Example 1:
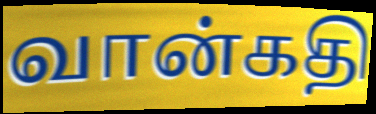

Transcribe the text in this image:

வான்கதி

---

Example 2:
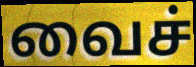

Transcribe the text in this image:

வைச்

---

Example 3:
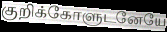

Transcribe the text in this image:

குறிக்கோளுடனேயே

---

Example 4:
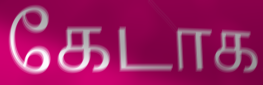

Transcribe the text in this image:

கேடாக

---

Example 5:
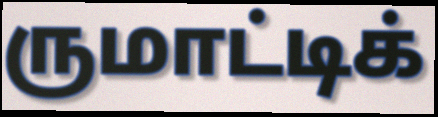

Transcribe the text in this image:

ருமாட்டிக்